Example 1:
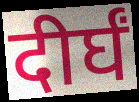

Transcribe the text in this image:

दीर्घं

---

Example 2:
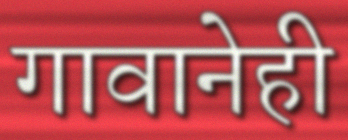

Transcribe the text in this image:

गावानेही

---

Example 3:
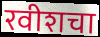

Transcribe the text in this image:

रवीशचा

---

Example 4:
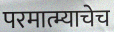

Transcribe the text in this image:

परमात्म्याचेच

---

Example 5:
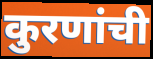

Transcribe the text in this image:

कुरणांची